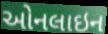
ઓનલાઇન